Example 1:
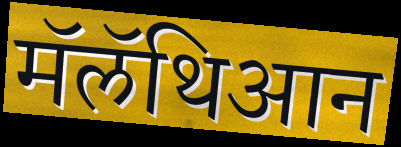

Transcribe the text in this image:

मॅलॅथिआन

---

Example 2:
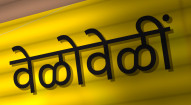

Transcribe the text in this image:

वेळोवेळीं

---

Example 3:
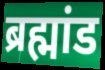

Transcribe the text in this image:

ब्रह्मांड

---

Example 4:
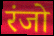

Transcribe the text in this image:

रंजो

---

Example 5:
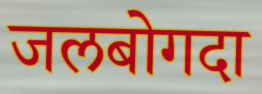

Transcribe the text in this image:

जलबोगदा